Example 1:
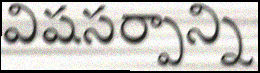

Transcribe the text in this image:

విషసర్పాన్ని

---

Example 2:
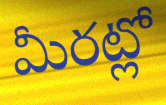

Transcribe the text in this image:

మీరట్లో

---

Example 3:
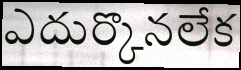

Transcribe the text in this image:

ఎదుర్కొనలేక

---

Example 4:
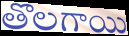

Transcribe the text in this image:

తొలగాయి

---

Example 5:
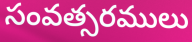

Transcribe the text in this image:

సంవత్సరములు